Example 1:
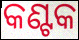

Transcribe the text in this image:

କଣ୍ଟକ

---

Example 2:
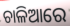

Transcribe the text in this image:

ଚାଳିଆରେ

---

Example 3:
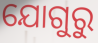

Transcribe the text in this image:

ଯୋଗୁରୁ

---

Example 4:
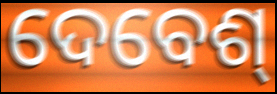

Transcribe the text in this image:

ଦେବେଶ୍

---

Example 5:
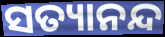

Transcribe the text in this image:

ସତ୍ୟାନନ୍ଦ